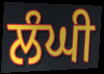
ਲੰਘੀ